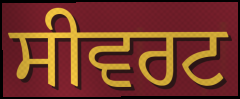
ਸੀਵਰਟ